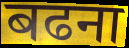
बढना